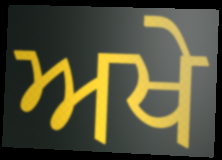
ਅਖੇ